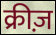
क्रीज़